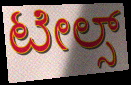
ಟೇಲ್ಸ್